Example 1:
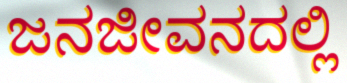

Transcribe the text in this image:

ಜನಜೀವನದಲ್ಲಿ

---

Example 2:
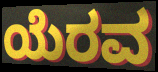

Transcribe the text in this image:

ಯೆರವ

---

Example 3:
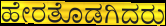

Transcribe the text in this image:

ಹೇರತೊಡಗಿದರು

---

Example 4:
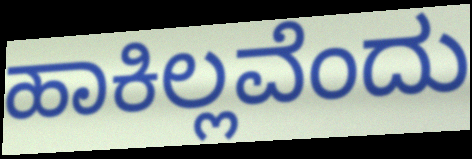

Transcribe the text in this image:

ಹಾಕಿಲ್ಲವೆಂದು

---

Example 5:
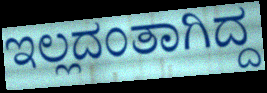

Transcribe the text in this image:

ಇಲ್ಲದಂತಾಗಿದ್ದ